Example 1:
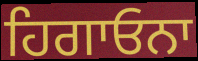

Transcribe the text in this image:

ਹਿਗਾਓਨਾ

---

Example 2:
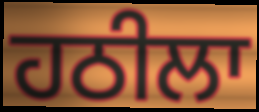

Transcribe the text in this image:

ਹਠੀਲਾ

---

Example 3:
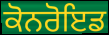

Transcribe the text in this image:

ਕੋਨਰੋਇਡ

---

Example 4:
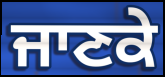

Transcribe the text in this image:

ਜਾਣਕੇ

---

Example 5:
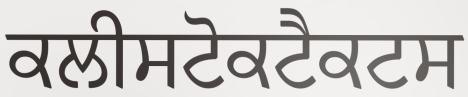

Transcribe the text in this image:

ਕਲੀਸਟੋਕਟੈਕਟਸ